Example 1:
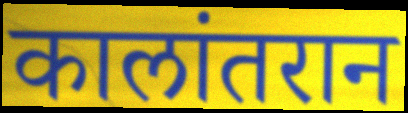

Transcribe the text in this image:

कालांतरान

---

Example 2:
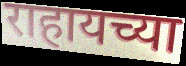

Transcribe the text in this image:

राहायच्या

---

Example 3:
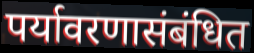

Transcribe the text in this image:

पर्यावरणासंबंधित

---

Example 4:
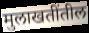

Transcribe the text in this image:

मुलाखतींतील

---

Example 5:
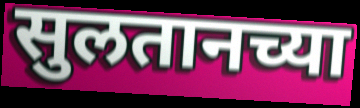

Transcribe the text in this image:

सुलतानच्या